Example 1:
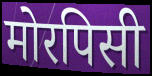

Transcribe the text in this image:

मोरपिसी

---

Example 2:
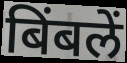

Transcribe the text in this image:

बिंबलें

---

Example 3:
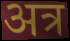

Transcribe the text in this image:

अत्र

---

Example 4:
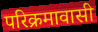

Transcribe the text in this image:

परिक्रमावासी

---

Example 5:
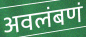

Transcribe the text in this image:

अवलंबणं